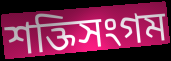
শক্তিসংগম